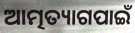
ଆତ୍ମତ୍ୟାଗପାଇଁ